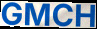
GMCH